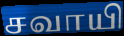
சவாயி